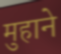
मुहाने